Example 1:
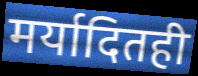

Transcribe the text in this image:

मर्यादितही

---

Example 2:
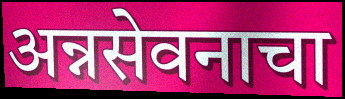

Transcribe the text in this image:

अन्नसेवनाचा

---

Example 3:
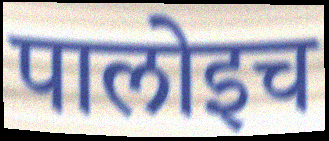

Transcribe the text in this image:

पालोइच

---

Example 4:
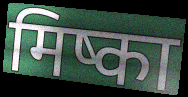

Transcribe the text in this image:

मिष्का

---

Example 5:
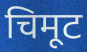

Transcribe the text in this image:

चिमूट